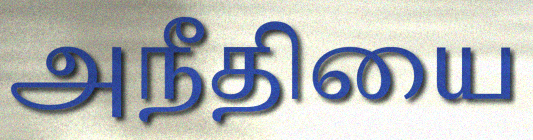
அநீதியை